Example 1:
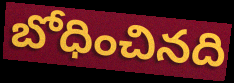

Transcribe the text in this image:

బోధించినది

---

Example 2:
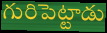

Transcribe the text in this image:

గురిపెట్టాడు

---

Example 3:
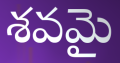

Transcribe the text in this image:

శవమై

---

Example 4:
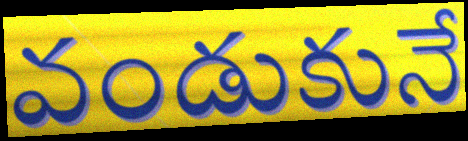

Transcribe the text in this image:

వండుకునే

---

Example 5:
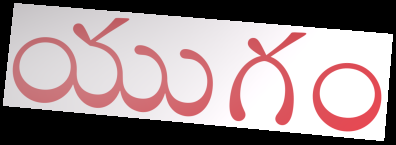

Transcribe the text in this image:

యుగం